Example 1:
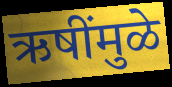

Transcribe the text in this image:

ऋषींमुळे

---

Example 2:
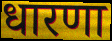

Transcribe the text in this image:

धारणा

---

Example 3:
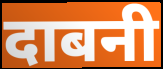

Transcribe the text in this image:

दाबनी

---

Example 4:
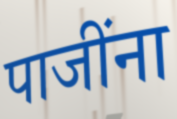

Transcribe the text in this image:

पाजींना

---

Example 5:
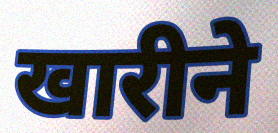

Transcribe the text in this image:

खारीने